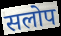
सलोप